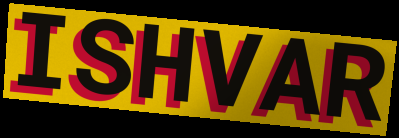
ISHVAR